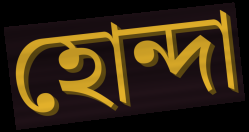
হোন্দা